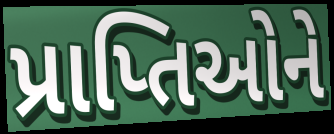
પ્રાપ્તિઓને